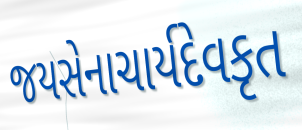
જયસેનાચાર્યદેવકૃત